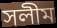
সলীম